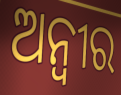
ଅନ୍ୱୀର